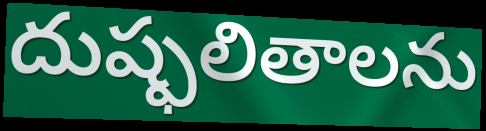
దుష్ఫలితాలను